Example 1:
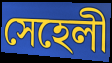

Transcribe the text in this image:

সেহেলী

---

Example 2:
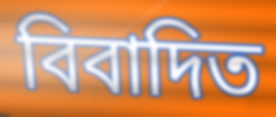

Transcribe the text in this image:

বিবাদিত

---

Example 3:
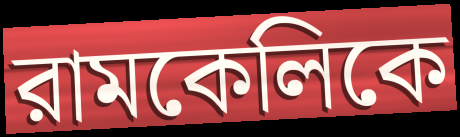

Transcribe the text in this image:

রামকেলিকে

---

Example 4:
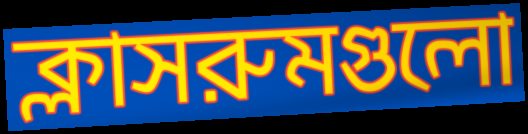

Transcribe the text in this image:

ক্লাসরুমগুলো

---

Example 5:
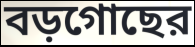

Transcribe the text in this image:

বড়গোছের